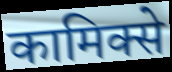
कामिक्से